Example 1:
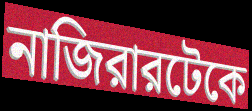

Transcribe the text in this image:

নাজিরারটেকে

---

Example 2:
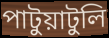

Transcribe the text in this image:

পাটুয়াটুলি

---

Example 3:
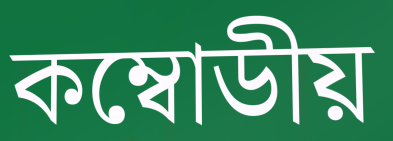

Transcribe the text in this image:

কম্বোডীয়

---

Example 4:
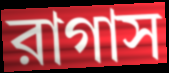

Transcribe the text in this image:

রাগাস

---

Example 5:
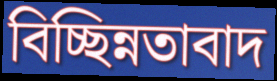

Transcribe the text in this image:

বিচ্ছিন্নতাবাদ